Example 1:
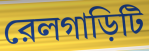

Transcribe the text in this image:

রেলগাড়িটি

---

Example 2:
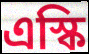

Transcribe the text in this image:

এস্কি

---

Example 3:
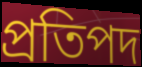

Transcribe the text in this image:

প্রতিপদ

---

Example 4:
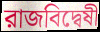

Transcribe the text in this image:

রাজবিদ্বেষী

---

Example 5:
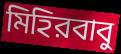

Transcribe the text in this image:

মিহিরবাবু